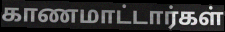
காணமாட்டார்கள்